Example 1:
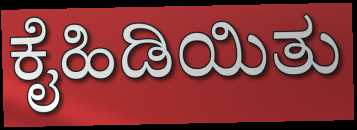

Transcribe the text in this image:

ಕೈಹಿಡಿಯಿತು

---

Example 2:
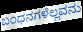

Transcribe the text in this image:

ಬಂಧನಗಳೆಲ್ಲವನು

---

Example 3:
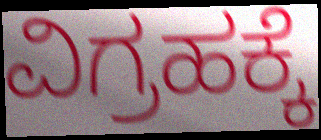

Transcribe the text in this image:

ವಿಗ್ರಹಕ್ಕೆ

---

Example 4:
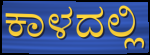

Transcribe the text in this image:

ಕಾಳದಲ್ಲಿ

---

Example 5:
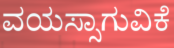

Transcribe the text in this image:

ವಯಸ್ಸಾಗುವಿಕೆ